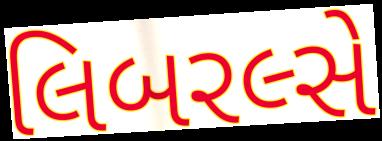
લિબરલ્સે